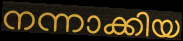
നന്നാക്കിയ